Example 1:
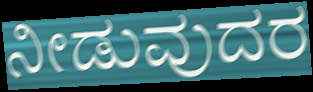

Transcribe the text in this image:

ನೀಡುವುದರ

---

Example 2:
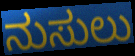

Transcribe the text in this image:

ನುಸುಲು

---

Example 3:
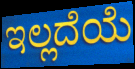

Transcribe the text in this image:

ಇಲ್ಲದೆಯೆ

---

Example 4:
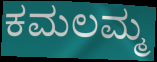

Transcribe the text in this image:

ಕಮಲಮ್ಮ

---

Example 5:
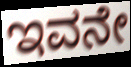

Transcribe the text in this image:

ಇವನೇ